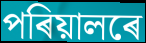
পৰিয়ালৰে